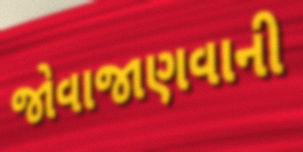
જોવાજાણવાની